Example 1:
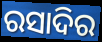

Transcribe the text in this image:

ରସାଦିର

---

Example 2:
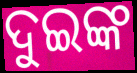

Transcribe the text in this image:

ଦୁଇଙ୍କ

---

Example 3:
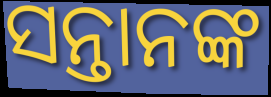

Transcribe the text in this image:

ସନ୍ତାନଙ୍କ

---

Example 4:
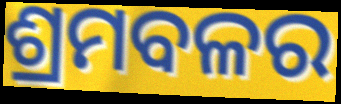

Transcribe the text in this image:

ଶ୍ରମବଳର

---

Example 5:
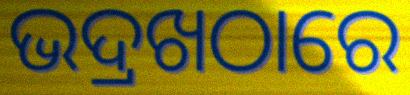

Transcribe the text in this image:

ଭଦ୍ରଖଠାରେ